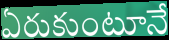
ఏరుకుంటూనే